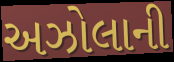
અઝોલાની